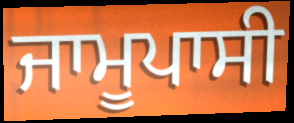
ਜਾਮੂਪਾਸੀ